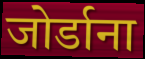
जोर्डाना